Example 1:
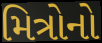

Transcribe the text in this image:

મિત્રોનો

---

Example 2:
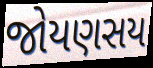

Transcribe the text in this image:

જોયણસય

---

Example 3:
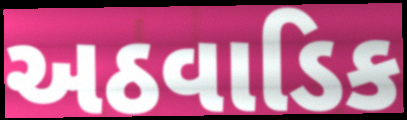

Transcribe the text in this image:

અઠવાડિક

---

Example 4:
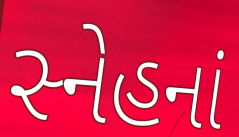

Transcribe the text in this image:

સ્નેહનાં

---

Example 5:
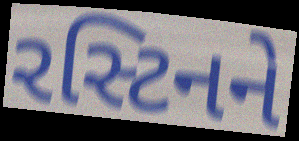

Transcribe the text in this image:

રસ્ટિનને